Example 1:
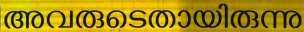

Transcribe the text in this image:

അവരുടെതായിരുന്നു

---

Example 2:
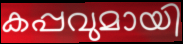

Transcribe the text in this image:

കപ്പവുമായി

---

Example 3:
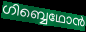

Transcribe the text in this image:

ഗിബ്ബെഥോൻ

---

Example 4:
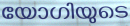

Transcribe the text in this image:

യോഗിയുടെ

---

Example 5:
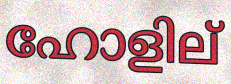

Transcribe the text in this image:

ഹോളില്